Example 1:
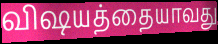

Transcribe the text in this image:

விஷயத்தையாவது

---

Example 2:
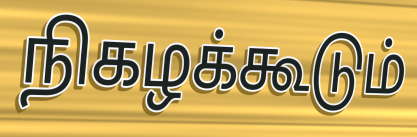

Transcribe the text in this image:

நிகழக்கூடும்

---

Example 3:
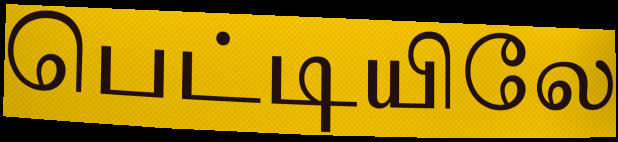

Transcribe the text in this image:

பெட்டியிலே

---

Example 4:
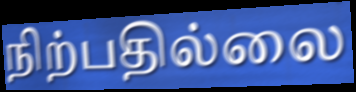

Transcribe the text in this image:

நிற்பதில்லை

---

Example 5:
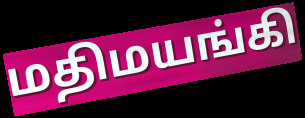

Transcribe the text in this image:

மதிமயங்கி